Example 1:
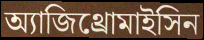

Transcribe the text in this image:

অ্যাজিথ্রোমাইসিন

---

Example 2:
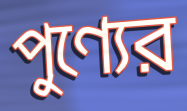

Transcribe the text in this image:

পুণ্যের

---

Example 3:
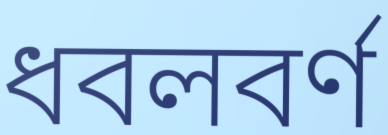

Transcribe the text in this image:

ধবলবর্ণ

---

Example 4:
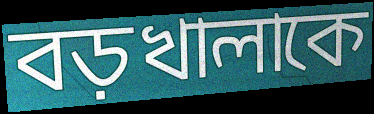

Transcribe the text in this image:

বড়খালাকে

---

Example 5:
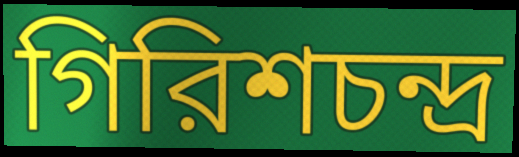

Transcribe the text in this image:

গিরিশচন্দ্র